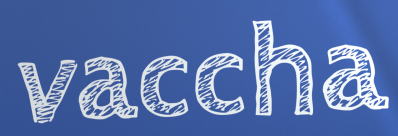
vaccha